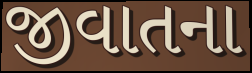
જીવાતના